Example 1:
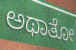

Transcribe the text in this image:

ಅಥಾತೋ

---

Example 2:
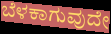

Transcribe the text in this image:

ಬೆಳಕಾಗುವುದೇ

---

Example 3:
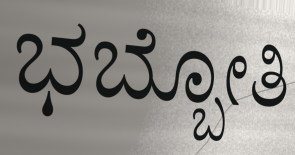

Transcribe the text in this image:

ಭಬ್ಬೋತಿ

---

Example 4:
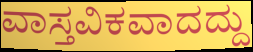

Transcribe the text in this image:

ವಾಸ್ತವಿಕವಾದದ್ದು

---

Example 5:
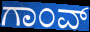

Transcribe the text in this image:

ಗಾಂವ್